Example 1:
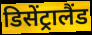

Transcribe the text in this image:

डिसेंट्रालैंड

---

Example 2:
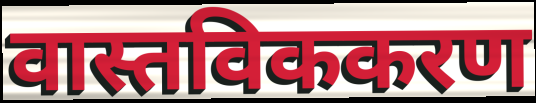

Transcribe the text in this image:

वास्तविककरण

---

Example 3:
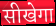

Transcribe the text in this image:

सीखेगा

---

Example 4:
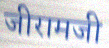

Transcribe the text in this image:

जीरामजी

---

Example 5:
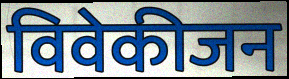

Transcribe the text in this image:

विवेकीजन